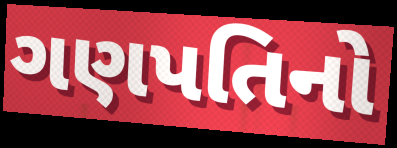
ગણપતિનો